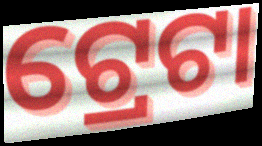
ଟ୍ରେଟା